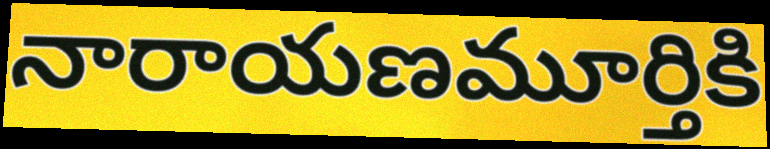
నారాయణమూర్తికి